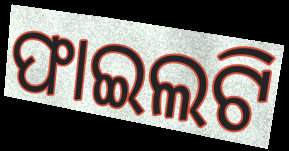
ଫାଇଲଟି